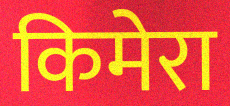
किमेरा